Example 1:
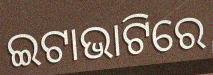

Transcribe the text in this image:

ଇଟାଭାଟିରେ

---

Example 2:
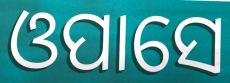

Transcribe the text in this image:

ଓପାସେ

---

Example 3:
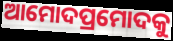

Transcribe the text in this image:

ଆମୋଦପ୍ରମୋଦକୁ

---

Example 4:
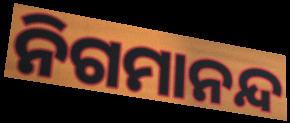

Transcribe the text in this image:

ନିଗମାନନ୍ଦ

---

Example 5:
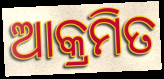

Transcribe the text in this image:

ଆକ୍ରମିତ